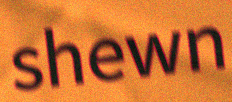
shewn